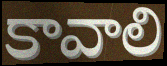
కావాలి